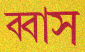
ব্বাস